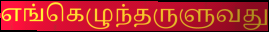
எங்கெழுந்தருளுவது